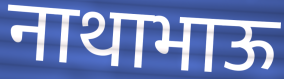
नाथाभाऊ